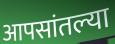
आपसांतल्या